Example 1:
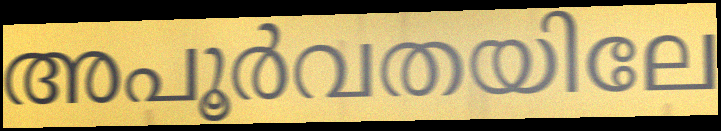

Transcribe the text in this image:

അപൂർവതയിലേ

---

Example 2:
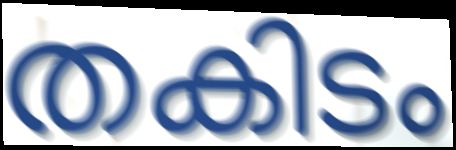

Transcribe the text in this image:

തകിടം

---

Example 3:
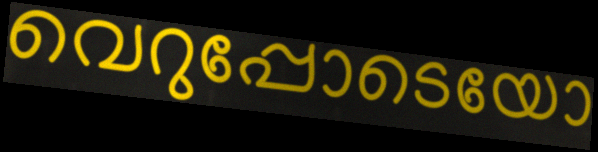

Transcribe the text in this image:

വെറുപ്പോടെയോ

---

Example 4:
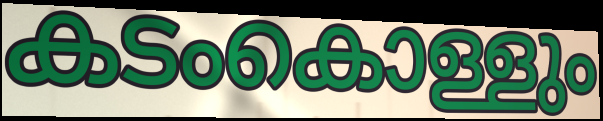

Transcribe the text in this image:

കടംകൊള്ളും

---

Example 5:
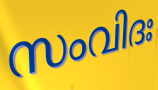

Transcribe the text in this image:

സംവിദഃ